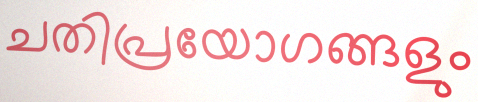
ചതിപ്രയോഗങ്ങളും